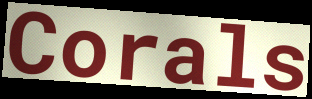
Corals